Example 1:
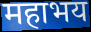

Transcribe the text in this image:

महाभय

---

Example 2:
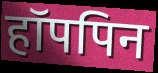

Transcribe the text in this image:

हॉपपिन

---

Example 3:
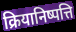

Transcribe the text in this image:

क्रियानिष्पत्ति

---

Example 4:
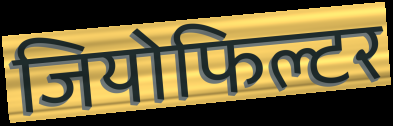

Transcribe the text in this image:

जियोफिल्टर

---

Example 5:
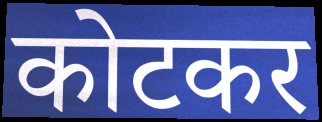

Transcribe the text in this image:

कोटकर